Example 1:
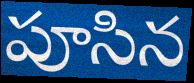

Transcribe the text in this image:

పూసిన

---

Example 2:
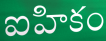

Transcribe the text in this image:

ఐహికం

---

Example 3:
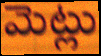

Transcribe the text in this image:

మెట్లు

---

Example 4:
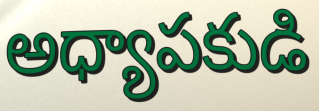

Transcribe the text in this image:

అధ్యాపకుడి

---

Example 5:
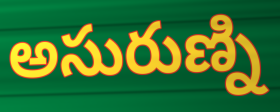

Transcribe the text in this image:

అసురుణ్ని